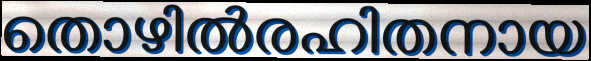
തൊഴിൽരഹിതനായ